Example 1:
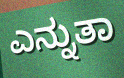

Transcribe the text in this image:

ಎನ್ನುತಾ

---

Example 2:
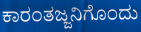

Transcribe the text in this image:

ಕಾರಂತಜ್ಜನಿಗೊಂದು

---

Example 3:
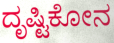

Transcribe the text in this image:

ದೃಷ್ಟಿಕೋನ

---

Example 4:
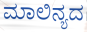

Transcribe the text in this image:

ಮಾಲಿನ್ಯದ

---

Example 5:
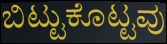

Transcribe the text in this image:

ಬಿಟ್ಟುಕೊಟ್ಟವು